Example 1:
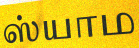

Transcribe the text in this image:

ஸ்யாம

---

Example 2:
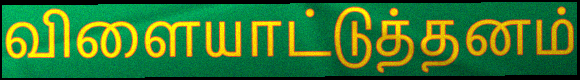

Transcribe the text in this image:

விளையாட்டுத்தனம்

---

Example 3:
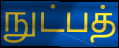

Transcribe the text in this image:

நுட்பத்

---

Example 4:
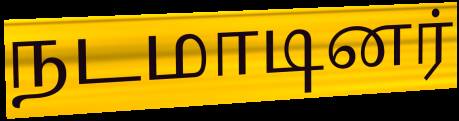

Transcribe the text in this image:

நடமாடினர்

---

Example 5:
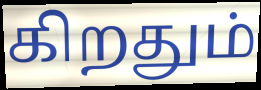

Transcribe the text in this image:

கிறதும்